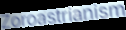
Zoroastrianism